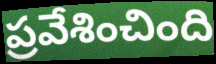
ప్రవేశించింది